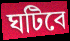
ঘটিবে